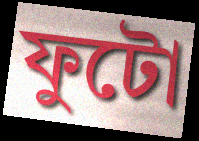
ফুটো